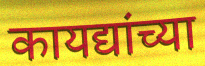
कायद्यांच्या